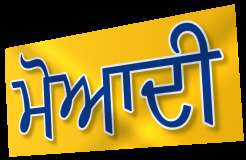
ਮੋਆਦੀ